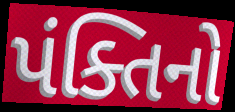
પંક્તિનો